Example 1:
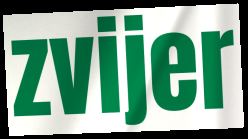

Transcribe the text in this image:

zvijer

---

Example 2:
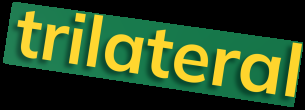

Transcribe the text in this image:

trilateral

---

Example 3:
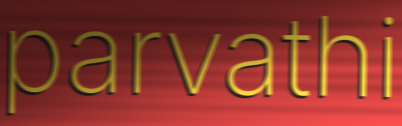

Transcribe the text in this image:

parvathi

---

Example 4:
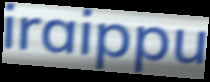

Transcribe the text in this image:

iraippu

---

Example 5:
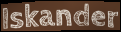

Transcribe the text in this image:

Iskander